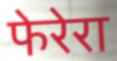
फेरेरा